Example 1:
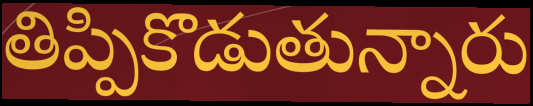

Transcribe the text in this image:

తిప్పికొడుతున్నారు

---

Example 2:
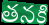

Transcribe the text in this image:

తనకి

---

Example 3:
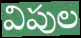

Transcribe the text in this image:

విపుల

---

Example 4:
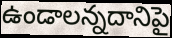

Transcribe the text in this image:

ఉండాలన్నదానిపై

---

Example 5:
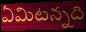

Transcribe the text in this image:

ఏమిటన్నది